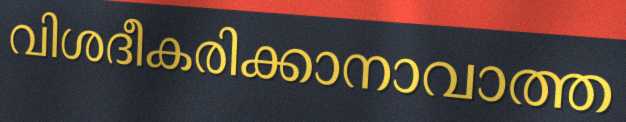
വിശദീകരിക്കാനാവാത്ത